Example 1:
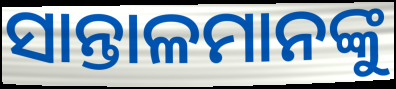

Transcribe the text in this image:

ସାନ୍ତାଳମାନଙ୍କୁ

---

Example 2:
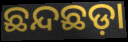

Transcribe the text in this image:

ଛନ୍ଦଛଡ଼ା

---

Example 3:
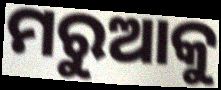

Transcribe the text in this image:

ମରୁଆକୁ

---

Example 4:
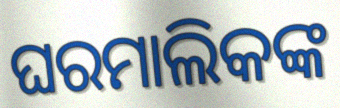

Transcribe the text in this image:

ଘରମାଲିକଙ୍କ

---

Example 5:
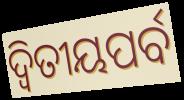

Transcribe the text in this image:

ଦ୍ୱିତୀୟପର୍ବ